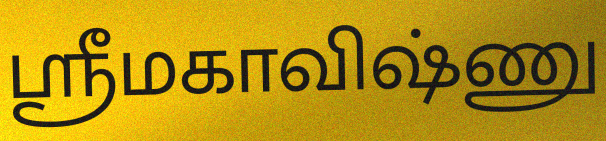
ஸ்ரீமகாவிஷ்ணு